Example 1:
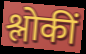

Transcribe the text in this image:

श्लोकीं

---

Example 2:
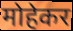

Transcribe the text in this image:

मोहेकर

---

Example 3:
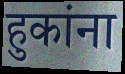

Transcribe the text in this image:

हुकांना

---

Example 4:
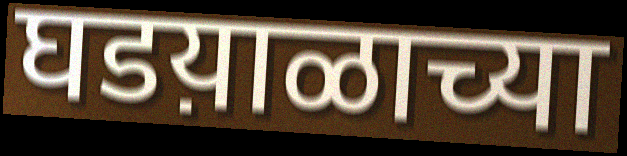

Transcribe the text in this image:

घडय़ाळाच्या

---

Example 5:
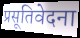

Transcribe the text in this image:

प्रसूतिवेदना